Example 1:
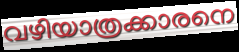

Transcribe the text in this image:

വഴിയാത്രക്കാരനെ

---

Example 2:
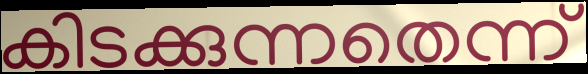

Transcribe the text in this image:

കിടക്കുന്നതെന്ന്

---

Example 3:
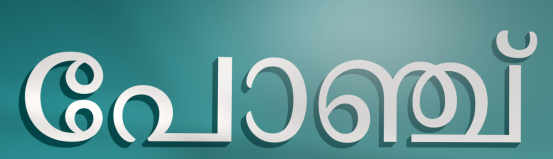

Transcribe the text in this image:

പോഞ്ച്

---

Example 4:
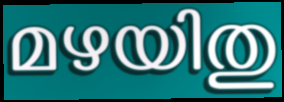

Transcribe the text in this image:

മഴയിതു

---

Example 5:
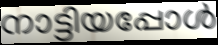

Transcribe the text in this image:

നാട്ടിയപ്പോൾ